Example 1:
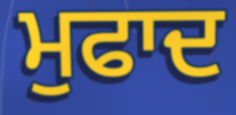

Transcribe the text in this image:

ਮੁਫਾਦ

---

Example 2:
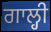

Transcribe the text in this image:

ਗਾਲ੍ਹ੍ਹੀ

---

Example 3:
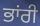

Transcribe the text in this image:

ਭਾਂਰੀ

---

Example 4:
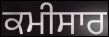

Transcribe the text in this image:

ਕਮੀਸਾਰ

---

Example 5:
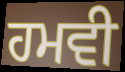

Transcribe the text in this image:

ਹਮਵੀ